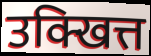
उक्खित्त